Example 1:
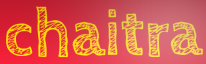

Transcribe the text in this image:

chaitra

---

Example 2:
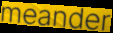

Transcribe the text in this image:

meander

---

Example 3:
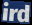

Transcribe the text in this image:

ird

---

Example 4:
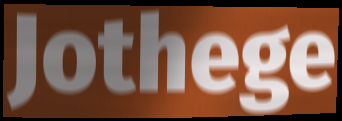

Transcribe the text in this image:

Jothege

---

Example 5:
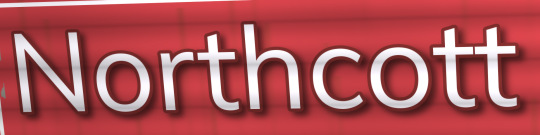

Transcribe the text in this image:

Northcott